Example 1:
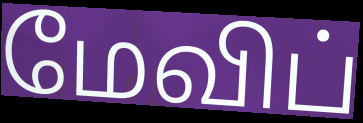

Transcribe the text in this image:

மேவிப்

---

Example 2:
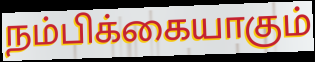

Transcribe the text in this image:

நம்பிக்கையாகும்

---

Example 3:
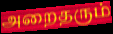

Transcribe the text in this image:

அறைதரும்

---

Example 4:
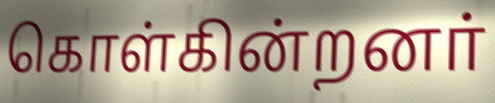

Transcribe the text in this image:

கொள்கின்றனர்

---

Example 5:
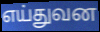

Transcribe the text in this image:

எய்துவன